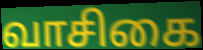
வாசிகை